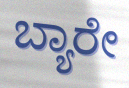
ಬ್ಯಾರೇ